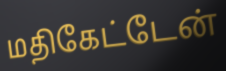
மதிகேட்டேன்